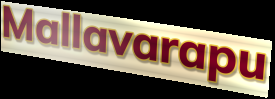
Mallavarapu